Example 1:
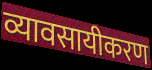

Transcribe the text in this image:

व्यावसायीकरण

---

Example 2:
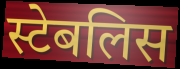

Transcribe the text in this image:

स्टेबलिस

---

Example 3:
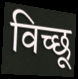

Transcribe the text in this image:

विच्छू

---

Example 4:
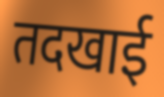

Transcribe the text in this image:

तदखाई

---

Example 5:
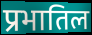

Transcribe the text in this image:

प्रभातिल